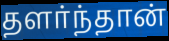
தளர்ந்தான்